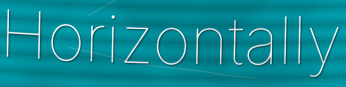
Horizontally